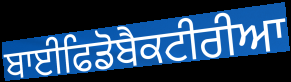
ਬਾਈਫਿਡੋਬੈਕਟੀਰੀਆ